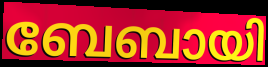
ബേബായി